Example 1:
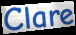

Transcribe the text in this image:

Clare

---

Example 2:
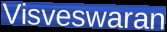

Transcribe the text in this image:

Visveswaran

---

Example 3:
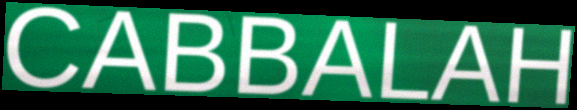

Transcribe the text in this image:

CABBALAH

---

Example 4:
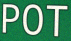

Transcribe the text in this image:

POT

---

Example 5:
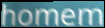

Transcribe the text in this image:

homem